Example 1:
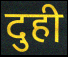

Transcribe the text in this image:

दुही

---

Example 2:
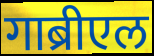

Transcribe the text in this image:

गाब्रीएल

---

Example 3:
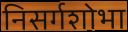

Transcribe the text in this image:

निसर्गशोभा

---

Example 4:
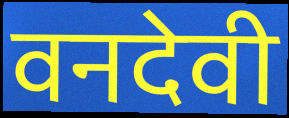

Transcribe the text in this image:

वनदेवी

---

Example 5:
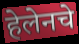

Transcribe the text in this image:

हेलेनचे